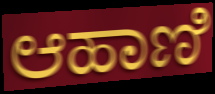
ಆಹಾಣಿ